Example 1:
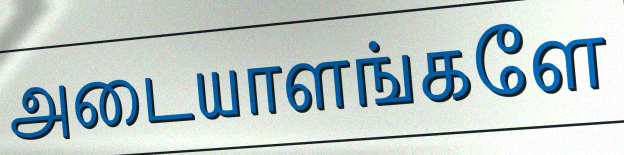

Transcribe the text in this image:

அடையாளங்களே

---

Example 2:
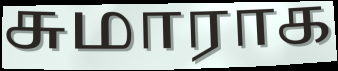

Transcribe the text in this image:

சுமாராக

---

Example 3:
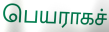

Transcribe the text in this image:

பெயராகச்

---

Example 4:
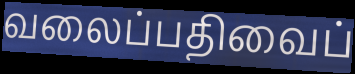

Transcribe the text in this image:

வலைப்பதிவைப்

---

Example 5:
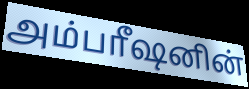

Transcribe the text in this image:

அம்பரீஷனின்